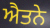
ਐਤਨੇ